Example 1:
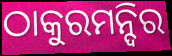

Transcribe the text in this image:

ଠାକୁରମନ୍ଦିର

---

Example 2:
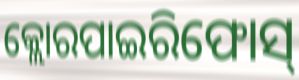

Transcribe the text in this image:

କ୍ଲୋରପାଇରିଫୋସ୍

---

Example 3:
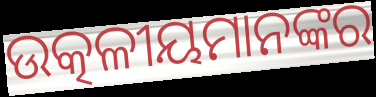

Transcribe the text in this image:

ଉତ୍କଳୀୟମାନଙ୍କର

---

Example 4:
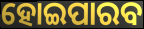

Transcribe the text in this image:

ହୋଇପାରବ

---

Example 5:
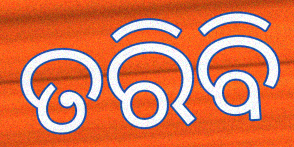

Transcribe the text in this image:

ତରିବି